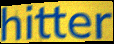
hitter